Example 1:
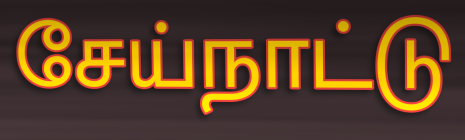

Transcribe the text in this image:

சேய்நாட்டு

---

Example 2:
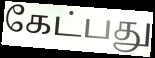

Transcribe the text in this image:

கேட்பது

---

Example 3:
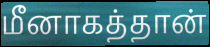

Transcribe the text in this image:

மீனாகத்தான்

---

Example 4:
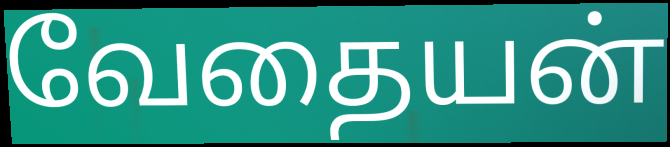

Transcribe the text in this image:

வேதையன்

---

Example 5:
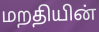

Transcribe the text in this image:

மறதியின்